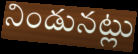
నిండునట్లు